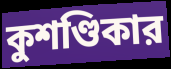
কুশণ্ডিকার